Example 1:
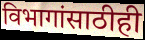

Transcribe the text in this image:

विभागांसाठीही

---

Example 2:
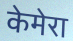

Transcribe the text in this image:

केमेरा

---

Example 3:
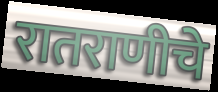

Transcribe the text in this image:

रातराणीचे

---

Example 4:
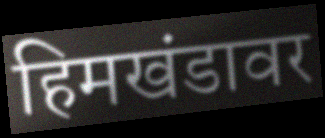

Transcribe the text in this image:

हिमखंडावर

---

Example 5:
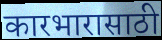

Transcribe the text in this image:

कारभारासाठी